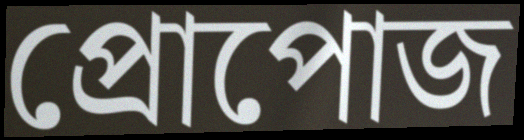
প্রোপোজ